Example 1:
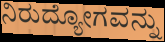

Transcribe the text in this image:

ನಿರುದ್ಯೋಗವನ್ನು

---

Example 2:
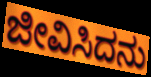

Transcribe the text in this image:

ಜೀವಿಸಿದನು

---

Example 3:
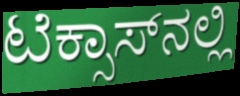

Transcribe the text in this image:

ಟೆಕ್ಸಾಸ್‌ನಲ್ಲಿ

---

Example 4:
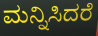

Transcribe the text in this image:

ಮನ್ನಿಸಿದರೆ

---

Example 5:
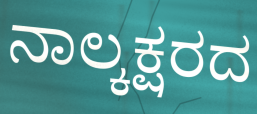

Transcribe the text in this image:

ನಾಲ್ಕಕ್ಷರದ